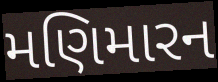
મણિમારન